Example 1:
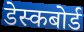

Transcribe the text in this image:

डेस्कबोर्ड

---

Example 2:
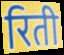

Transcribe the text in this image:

रिती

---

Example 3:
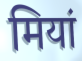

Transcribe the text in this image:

मियां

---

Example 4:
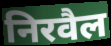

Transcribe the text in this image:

निरवैल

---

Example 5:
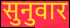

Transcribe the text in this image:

सुनुवार